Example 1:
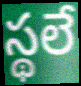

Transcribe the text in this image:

స్థలే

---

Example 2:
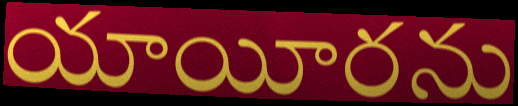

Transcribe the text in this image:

యాయీరను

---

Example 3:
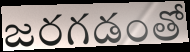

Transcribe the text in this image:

జరగడంతో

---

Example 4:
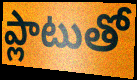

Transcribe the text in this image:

ప్లాటుతో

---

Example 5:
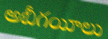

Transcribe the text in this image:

అబీగయీలు